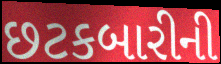
છટકબારીની